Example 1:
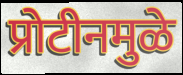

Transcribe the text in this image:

प्रोटीनमुळे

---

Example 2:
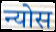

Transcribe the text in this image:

न्योस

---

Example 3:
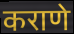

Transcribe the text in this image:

कराणे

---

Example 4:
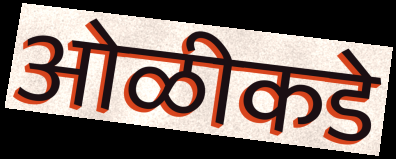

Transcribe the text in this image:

ओळीकडे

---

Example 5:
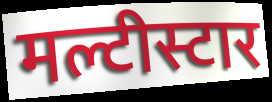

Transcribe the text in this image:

मल्टीस्टार